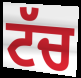
ਟੱਚ